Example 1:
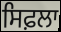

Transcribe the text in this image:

ਸਿਫ਼ਲਾ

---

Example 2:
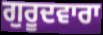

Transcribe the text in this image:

ਗੁਰੂਦਵਾਰਾ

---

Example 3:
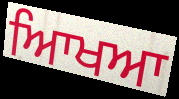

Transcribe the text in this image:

ਆਿਖਆ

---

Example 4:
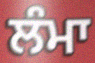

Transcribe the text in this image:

ਲੰਮਾ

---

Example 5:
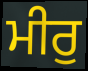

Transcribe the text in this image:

ਮੀਰੁ